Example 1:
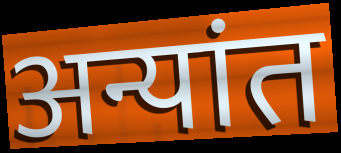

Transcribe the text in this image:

अन्यांत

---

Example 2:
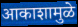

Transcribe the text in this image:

आकाशामुळे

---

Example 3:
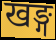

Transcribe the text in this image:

खङ्ग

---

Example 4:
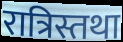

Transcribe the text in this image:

रात्रिस्तथा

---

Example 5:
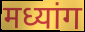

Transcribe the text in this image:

मध्यांग